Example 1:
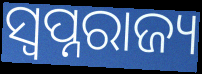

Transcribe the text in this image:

ସ୍ୱପ୍ନରାଜ୍ୟ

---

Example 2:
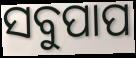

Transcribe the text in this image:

ସବୁପାପ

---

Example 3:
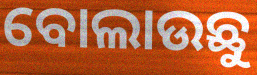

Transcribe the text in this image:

ବୋଲାଉଛୁ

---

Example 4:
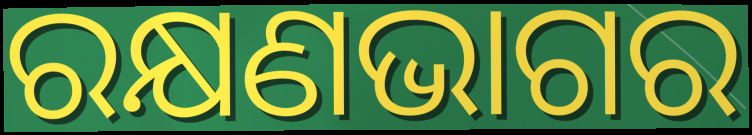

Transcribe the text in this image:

ରକ୍ଷଣଭାଗର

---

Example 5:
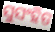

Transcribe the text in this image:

ସୁସଂହିତ